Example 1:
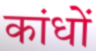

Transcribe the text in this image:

कांधों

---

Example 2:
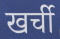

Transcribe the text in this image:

खर्ची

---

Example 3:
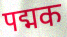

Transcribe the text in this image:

पद्मक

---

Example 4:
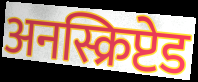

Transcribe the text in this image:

अनस्क्रिप्टेड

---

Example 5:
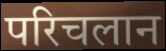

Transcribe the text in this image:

परिचलान